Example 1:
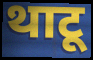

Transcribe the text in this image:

थाटू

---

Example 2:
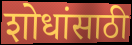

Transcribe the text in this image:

शोधांसाठी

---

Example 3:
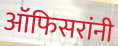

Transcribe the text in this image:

ऑफिसरांनी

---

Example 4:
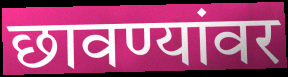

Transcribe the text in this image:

छावण्यांवर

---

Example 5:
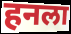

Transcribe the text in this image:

हनला